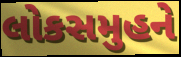
લોકસમુહને